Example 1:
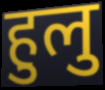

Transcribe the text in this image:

हुलु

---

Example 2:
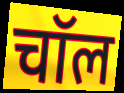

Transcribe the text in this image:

चॉल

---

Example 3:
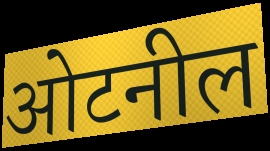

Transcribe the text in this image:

ओटनील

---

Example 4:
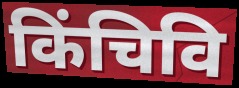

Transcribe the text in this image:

किंचिवि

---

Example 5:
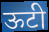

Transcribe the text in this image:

ऊटी